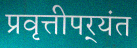
प्रवृत्तीपर्यंत